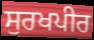
ਸੁਰਖਪੀਰ